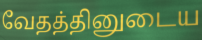
வேதத்தினுடைய